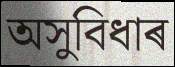
অসুবিধাৰ